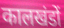
कालखंडों